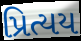
પ્રિત્યય